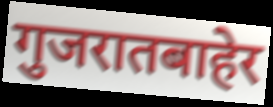
गुजरातबाहेर